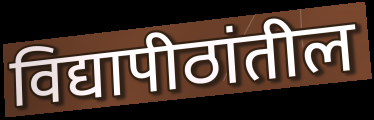
विद्यापीठांतील